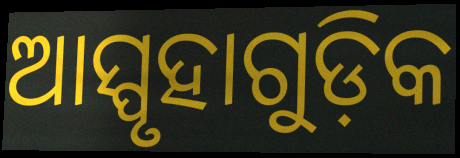
ଆସ୍ପୃହାଗୁଡ଼ିକ